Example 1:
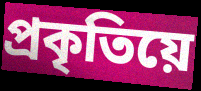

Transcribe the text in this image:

প্ৰকৃতিয়ে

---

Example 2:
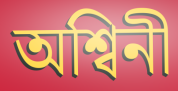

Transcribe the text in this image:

অশ্বিনী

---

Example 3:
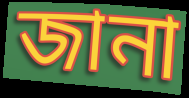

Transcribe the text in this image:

জানা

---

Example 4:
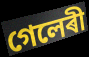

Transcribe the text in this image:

গেলেৰী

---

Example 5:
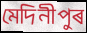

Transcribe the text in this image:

মেদিনীপুৰ